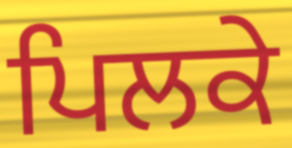
ਪਿਲਕੇ